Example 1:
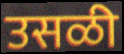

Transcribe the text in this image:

उसळी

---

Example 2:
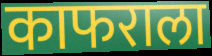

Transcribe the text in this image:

काफराला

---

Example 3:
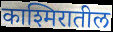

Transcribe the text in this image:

काश्मिरातील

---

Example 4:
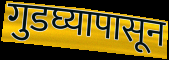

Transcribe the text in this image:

गुडघ्यापासून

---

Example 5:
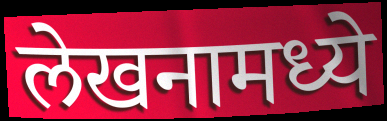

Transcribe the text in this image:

लेखनामध्ये